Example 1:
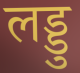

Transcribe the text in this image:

लड्डु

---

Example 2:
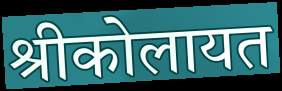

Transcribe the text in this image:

श्रीकोलायत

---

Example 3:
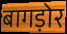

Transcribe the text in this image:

बागड़ोर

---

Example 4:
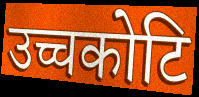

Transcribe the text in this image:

उच्चकोटि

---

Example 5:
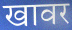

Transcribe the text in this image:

खावर